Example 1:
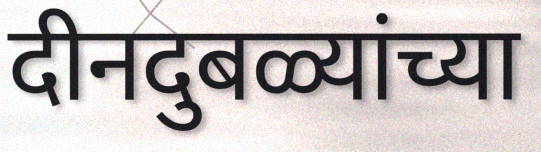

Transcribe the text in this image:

दीनदुबळ्यांच्या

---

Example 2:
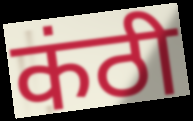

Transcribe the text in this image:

कंठी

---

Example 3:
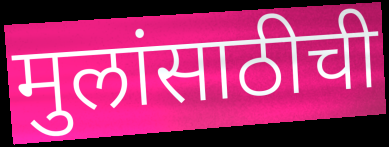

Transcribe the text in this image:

मुलांसाठीची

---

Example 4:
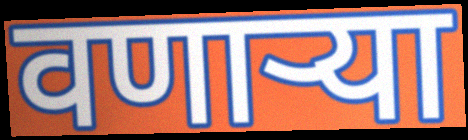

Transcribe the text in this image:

वणाऱ्या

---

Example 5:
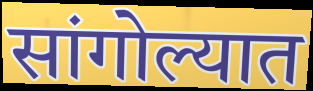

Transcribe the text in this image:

सांगोल्यात